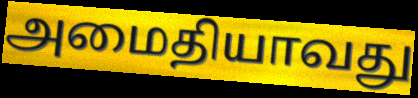
அமைதியாவது